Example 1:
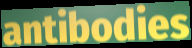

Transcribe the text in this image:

antibodies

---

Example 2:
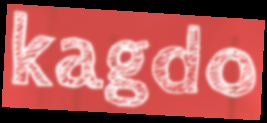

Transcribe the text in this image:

kagdo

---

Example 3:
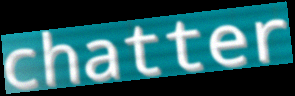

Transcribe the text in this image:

chatter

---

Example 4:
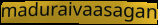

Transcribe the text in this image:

maduraivaasagan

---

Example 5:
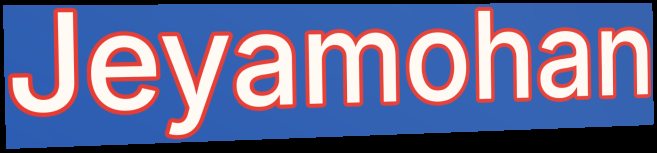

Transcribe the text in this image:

Jeyamohan